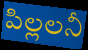
పిల్లలనీ